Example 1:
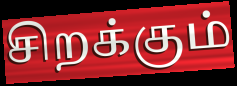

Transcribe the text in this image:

சிறக்கும்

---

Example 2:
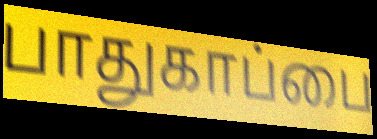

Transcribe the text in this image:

பாதுகாப்பை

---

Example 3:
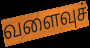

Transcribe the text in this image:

வளைவுச்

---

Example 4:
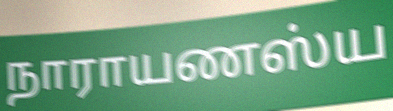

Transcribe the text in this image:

நாராயணஸ்ய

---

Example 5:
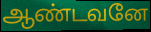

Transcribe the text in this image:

ஆண்டவனே